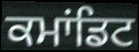
ਕਮਾਂਡਿਟ